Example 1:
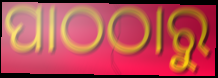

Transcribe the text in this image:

ପାଠଠାରୁ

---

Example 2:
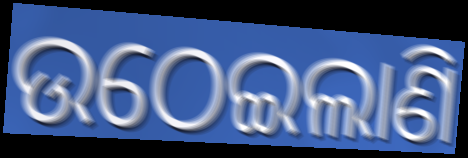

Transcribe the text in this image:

ଉଠେଇଲାଣି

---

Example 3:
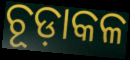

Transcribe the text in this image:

ଚୂଡ଼ାକଳ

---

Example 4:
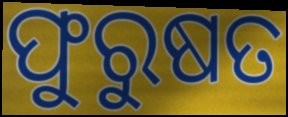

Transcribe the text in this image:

ଫୁରୁଷତ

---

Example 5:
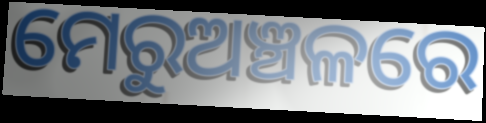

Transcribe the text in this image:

ମେରୁଅଞ୍ଚଳରେ